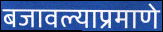
बजावल्याप्रमाणे